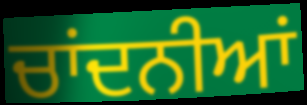
ਚਾਂਦਨੀਆਂ